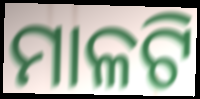
ମାଳଟି